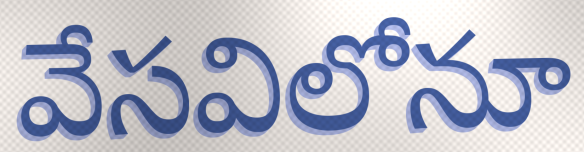
వేసవిలోనూ